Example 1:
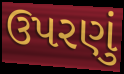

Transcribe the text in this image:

ઉપરણું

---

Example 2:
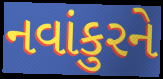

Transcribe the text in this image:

નવાંકુરને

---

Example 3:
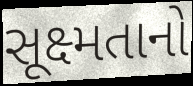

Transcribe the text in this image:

સૂક્ષ્મતાનો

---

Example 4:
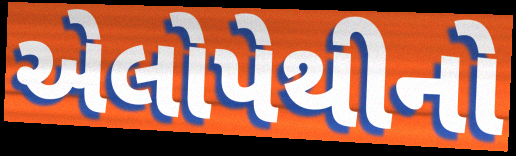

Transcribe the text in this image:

એલોપેથીનો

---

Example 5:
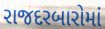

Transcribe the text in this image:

રાજદરબારોમાં